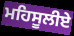
ਮਹਿਸੂਲੀਏ